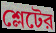
শ্লেটের